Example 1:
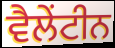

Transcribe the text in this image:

ਵੈਲੇਂਟੀਨ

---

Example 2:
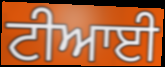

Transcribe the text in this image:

ਟੀਆਈ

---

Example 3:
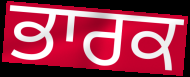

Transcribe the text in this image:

ਭਾਰਕ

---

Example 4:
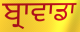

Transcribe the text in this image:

ਬ੍ਰਾਵਾਡਾ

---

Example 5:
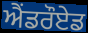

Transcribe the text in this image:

ਐਂਡਰੌਏਡ